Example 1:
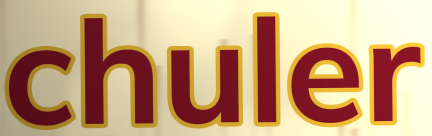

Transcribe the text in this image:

chuler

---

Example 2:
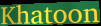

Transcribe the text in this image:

Khatoon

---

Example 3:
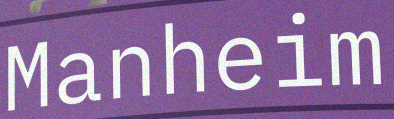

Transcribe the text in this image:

Manheim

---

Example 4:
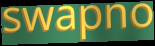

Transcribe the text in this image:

swapno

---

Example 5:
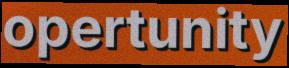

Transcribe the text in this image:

opertunity